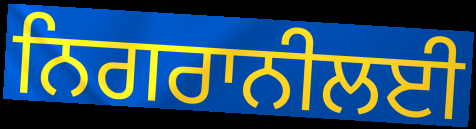
ਨਿਗਰਾਨੀਲਈ